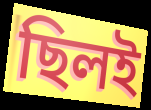
ছিলই